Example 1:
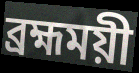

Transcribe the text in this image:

ব্রহ্মময়ী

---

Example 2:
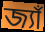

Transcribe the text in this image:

জ্যাঁ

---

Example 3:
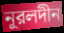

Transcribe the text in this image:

নূরলদীন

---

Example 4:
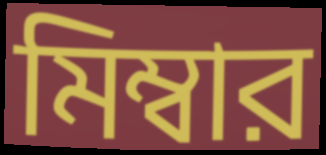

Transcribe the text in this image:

মিম্বার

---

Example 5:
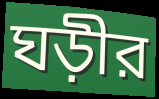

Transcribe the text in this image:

ঘড়ীর